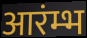
आरंम्भ